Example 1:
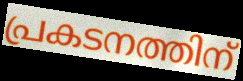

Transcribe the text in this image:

പ്രകടനത്തിന്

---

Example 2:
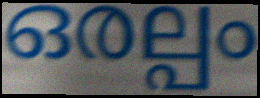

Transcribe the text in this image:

ഒരല്പം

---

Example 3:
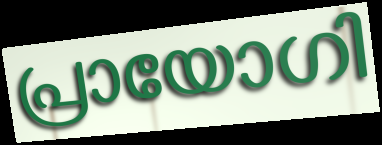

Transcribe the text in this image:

പ്രായോഗി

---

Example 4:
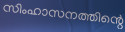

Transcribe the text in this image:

സിംഹാസനത്തിന്റെ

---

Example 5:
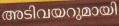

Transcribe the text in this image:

അടിവയറുമായി